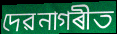
দেৱনাগৰীত